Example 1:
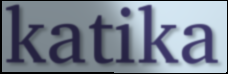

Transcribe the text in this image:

katika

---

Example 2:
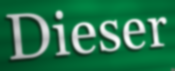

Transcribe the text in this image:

Dieser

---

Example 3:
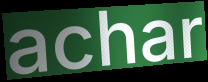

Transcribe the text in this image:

achar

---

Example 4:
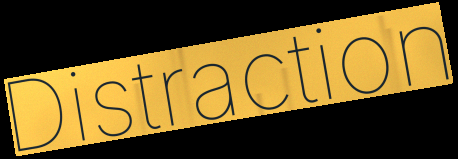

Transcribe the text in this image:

Distraction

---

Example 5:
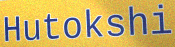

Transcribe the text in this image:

Hutokshi